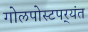
गोलपोस्टपर्यंत